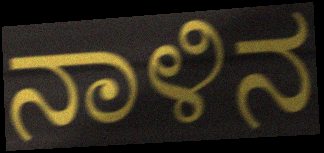
ನಾಳಿನ